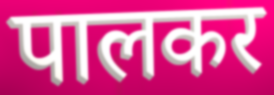
पालकर